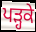
ਪੜ੍ਹਕੇ